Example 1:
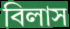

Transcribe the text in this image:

বিলাস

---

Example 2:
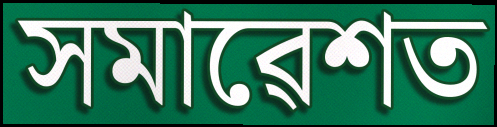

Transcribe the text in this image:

সমাৱেশত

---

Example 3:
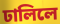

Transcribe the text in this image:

ঢালিলে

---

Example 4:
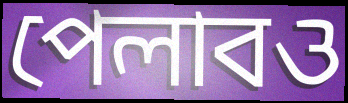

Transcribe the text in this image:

পেলাবও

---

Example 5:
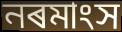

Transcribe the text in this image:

নৰমাংস